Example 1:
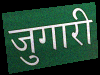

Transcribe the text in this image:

जुगारी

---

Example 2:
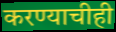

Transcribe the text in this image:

करण्याचीही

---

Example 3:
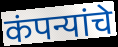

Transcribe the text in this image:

कंपन्यांचे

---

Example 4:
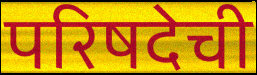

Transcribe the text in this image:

परिषदेची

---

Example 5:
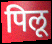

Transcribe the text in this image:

पिलू